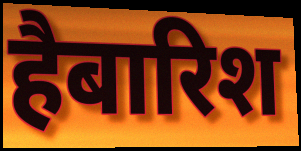
हैबारिश